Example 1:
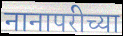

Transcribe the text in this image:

नानापरीच्या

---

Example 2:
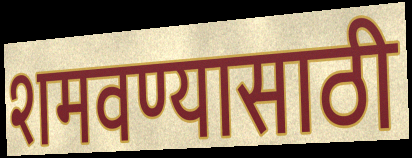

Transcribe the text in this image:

शमवण्यासाठी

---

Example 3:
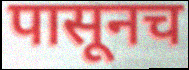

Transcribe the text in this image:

पासूनच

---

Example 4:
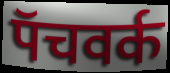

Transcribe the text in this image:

पॅचवर्क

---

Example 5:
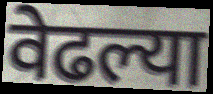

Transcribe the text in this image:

वेढल्या